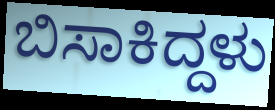
ಬಿಸಾಕಿದ್ದಳು